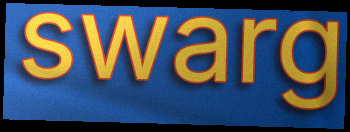
swarg